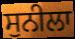
ਸੁਨੀਲਾ